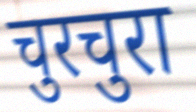
चुरचुरा